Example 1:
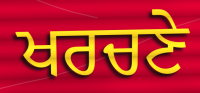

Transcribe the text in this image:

ਖਰਚਣੇ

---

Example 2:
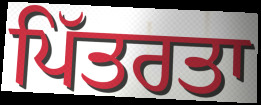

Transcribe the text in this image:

ਪਿੱਤਰਤਾ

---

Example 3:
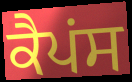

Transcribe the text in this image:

ਕੈਪਂਸ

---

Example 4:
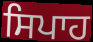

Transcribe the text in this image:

ਸਿਪਾਹ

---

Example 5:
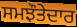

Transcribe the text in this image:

ਸਮਝੌਤੇਦਾਰ